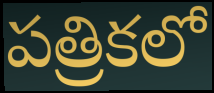
పత్రికలో